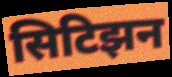
सिटिझन